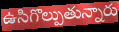
ఉసిగొల్పుతున్నారు